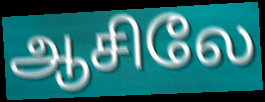
ஆசிலே